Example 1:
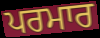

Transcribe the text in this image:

ਪਰਮਾਰ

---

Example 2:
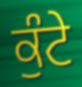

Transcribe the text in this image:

ਕੁੰਟੇ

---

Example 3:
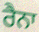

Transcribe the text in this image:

ਰੈਨਾ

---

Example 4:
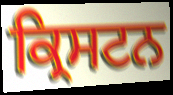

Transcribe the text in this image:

ਕ੍ਰਿਸਟਨ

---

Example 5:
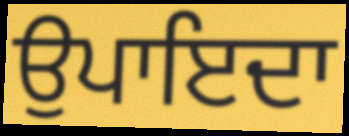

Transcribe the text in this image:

ਉਪਾਇਦਾ